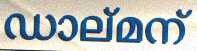
ഡാല്മന്